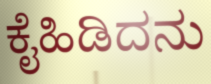
ಕೈಹಿಡಿದನು